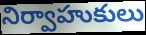
నిర్వాహుకులు